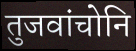
तुजवांचोनि